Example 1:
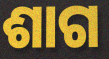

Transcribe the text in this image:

ଶାଗ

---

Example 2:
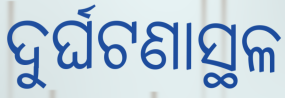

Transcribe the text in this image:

ଦୁର୍ଘଟଣାସ୍ଥଳ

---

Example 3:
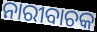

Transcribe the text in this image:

ନାରୀବାଚକ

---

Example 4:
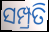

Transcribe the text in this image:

ସମ୍ପ୍ରତି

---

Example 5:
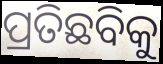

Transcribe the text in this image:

ପ୍ରତିଛବିକୁ